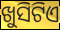
ଖୁସିଟିଏ